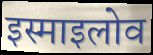
इस्माइलोव